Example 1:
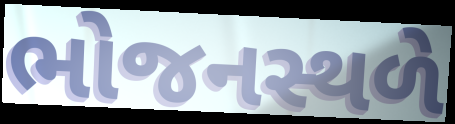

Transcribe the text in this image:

ભોજનસ્થળે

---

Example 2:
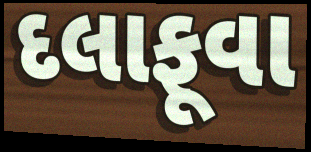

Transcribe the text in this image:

દલાફૂવા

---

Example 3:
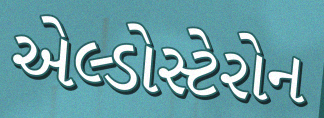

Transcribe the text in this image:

એલ્ડોસ્ટેરોન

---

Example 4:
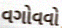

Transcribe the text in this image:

વગોવવો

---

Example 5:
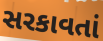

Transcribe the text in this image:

સરકાવતાં